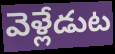
వెళ్లేడుట